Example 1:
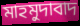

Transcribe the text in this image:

মাহমুদাবাদ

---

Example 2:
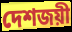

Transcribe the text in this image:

দেশজয়ী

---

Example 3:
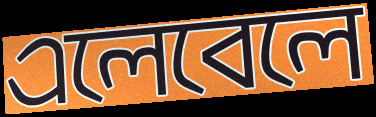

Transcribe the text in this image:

এলেবেলে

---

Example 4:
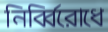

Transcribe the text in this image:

নির্ব্বিরোধে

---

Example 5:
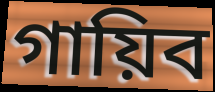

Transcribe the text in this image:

গায়িব